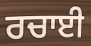
ਰਚਾਈ